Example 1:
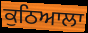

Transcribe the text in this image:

ਕੁਠਿਆਲਾ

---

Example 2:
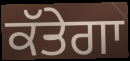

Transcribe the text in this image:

ਕੱਤੇਗਾ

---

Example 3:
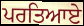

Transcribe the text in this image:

ਪਰਤਿਆਏ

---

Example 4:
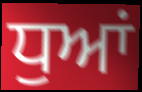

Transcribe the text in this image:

ਧੁਆਂ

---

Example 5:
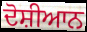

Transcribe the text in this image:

ਦੋਸ਼ੀਆਨ